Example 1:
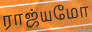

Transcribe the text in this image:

ராஜ்யமோ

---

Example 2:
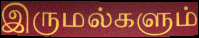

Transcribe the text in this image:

இருமல்களும்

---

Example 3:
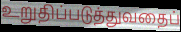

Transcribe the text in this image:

உறுதிப்படுத்துவதைப்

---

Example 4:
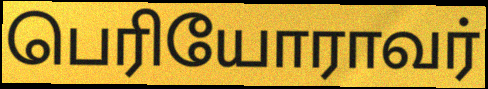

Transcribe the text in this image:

பெரியோராவர்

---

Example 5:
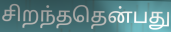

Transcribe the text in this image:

சிறந்ததென்பது